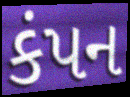
કંપન